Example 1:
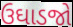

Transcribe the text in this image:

ઉઘાડજો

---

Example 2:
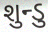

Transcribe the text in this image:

શુન્ડુ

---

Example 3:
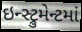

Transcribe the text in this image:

ઇન્સ્ટ્રુમેન્ટમાં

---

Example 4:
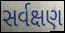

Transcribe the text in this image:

સર્વક્ષણ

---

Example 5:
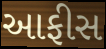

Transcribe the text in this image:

આફીસ